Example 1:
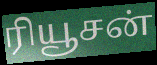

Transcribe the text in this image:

ரியூசன்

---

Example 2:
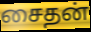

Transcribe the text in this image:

சைதன்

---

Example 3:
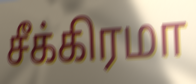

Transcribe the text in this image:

சீக்கிரமா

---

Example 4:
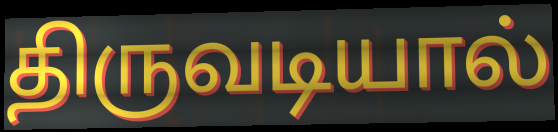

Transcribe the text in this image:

திருவடியால்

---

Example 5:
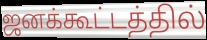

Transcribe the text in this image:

ஜனக்கூட்டத்தில்